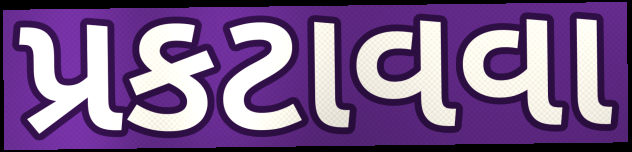
પ્રકટાવવા